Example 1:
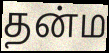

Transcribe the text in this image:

தன்ம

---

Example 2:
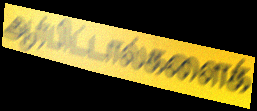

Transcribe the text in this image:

ஆர்பிட்டால்களைக்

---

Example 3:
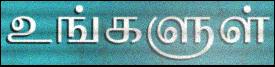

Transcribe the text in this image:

உங்களுள்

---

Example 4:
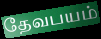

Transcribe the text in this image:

தேவபயம்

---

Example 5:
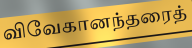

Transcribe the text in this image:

விவேகானந்தரைத்